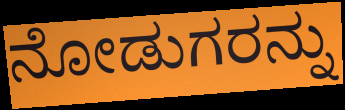
ನೋಡುಗರನ್ನು